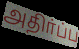
அதிர்ப்ப